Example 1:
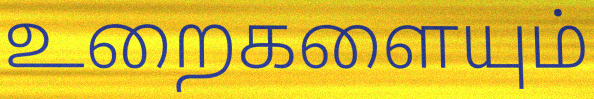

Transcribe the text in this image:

உறைகளையும்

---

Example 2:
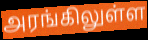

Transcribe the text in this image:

அரங்கிலுள்ள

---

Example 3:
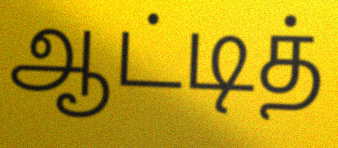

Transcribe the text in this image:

ஆட்டித்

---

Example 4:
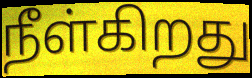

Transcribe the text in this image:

நீள்கிறது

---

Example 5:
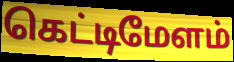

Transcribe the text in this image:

கெட்டிமேளம்